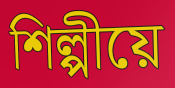
শিল্পীয়ে